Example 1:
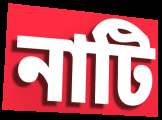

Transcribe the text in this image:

নাটি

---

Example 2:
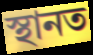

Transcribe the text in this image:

স্থানত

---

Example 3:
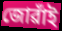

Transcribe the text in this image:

জোৱাঁই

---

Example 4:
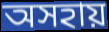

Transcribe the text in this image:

অসহায়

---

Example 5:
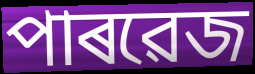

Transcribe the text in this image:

পাৰৱেজ